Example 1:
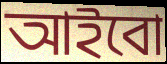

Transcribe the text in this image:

আইবো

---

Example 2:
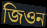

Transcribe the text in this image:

জিওন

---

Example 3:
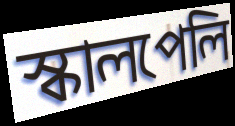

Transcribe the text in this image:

স্কালপেলি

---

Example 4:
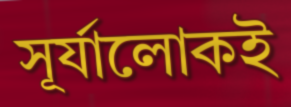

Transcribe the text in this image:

সূর্যালোকই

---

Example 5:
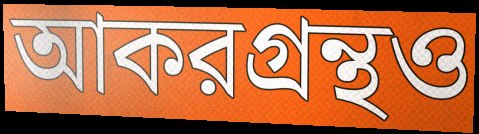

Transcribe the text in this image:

আকরগ্রন্থও